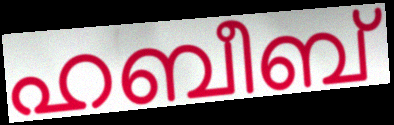
ഹബീബ്